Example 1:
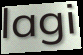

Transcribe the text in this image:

lagi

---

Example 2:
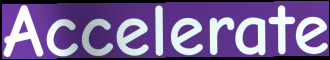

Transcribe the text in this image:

Accelerate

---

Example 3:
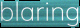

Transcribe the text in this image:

blaring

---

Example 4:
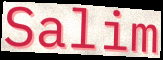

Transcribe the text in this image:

Salim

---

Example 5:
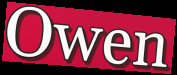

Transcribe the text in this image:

Owen